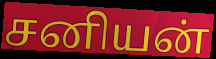
சனியன்